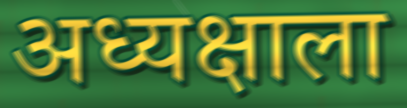
अध्यक्षाला